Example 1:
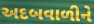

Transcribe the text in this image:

અદબવાળીને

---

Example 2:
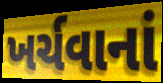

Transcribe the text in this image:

ખર્ચવાનાં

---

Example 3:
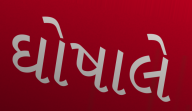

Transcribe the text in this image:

ઘોષાલે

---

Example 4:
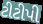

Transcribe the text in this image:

ટીટીપી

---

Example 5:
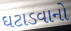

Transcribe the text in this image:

ઘટાડવાનો